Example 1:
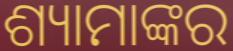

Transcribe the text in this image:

ଶ୍ୟାମାଙ୍କର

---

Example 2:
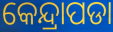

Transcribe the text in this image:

କେନ୍ଦ୍ରାପଡା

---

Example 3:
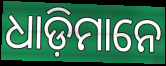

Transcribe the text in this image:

ଧାଡ଼ିମାନେ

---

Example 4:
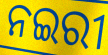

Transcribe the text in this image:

ନଇରୀ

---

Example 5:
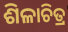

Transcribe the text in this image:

ଶିଳାଚିତ୍ର